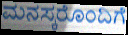
ಮನಸ್ಕರೊಂದಿಗೆ